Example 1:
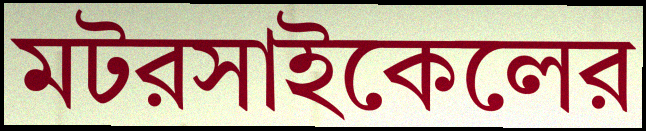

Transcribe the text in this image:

মটরসাইকেলের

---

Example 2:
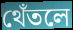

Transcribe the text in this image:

থেঁতলে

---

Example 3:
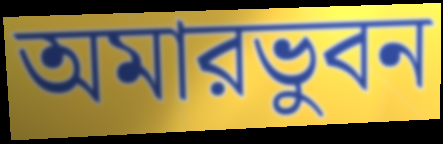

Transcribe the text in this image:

অমারভুবন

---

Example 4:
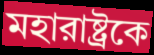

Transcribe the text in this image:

মহারাষ্ট্রকে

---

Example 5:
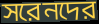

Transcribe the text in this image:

সরেনদের